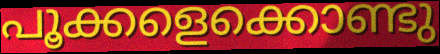
പൂക്കളെക്കൊണ്ടു